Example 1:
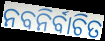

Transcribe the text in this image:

ନବନିର୍ବାଚିତ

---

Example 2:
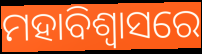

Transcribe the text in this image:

ମହାବିଶ୍ୱାସରେ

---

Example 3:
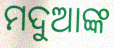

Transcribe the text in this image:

ମଦୁଆଙ୍କ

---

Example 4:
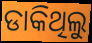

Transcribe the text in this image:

ଡାକିଥିଲୁ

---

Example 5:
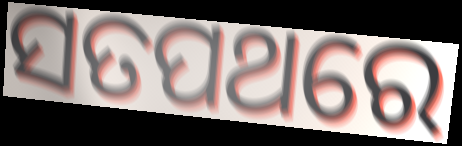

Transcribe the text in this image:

ସତପଥରେ